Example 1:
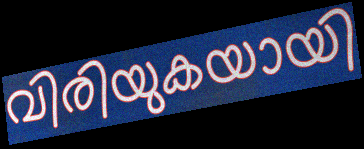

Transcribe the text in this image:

വിരിയുകയായി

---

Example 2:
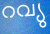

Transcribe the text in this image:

റവ്യു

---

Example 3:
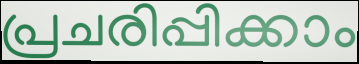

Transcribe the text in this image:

പ്രചരിപ്പിക്കാം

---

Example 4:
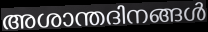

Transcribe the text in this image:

അശാന്തദിനങ്ങൾ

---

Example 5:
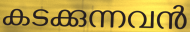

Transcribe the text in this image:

കടക്കുന്നവൻ